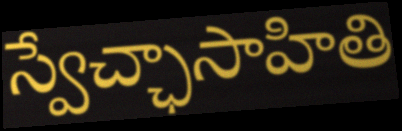
స్వేచ్ఛాసాహితి